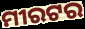
ମୀରଟର